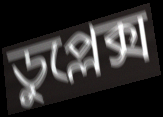
ডুপ্লেক্স